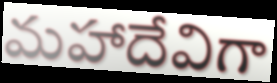
మహాదేవిగా